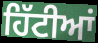
ਹਿੱਟੀਆਂ